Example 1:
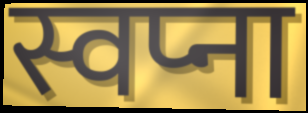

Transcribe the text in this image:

स्‍वप्‍ना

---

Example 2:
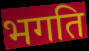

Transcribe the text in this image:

भगति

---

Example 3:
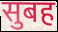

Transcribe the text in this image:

सुबह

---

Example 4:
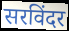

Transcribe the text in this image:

सरविंदर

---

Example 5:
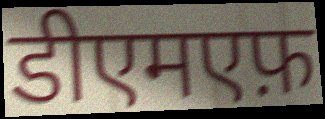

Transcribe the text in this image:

डीएमएफ़